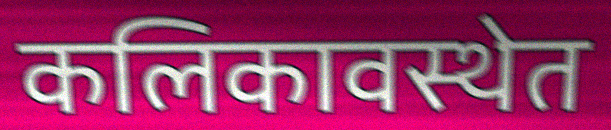
कलिकावस्थेत